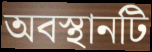
অবস্থানটি